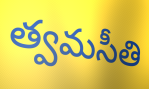
త్వమసీతి